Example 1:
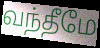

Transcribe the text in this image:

வந்தீமே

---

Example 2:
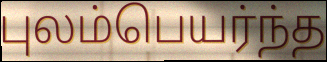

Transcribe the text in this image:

புலம்பெயர்ந்த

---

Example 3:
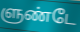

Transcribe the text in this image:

ளுண்டே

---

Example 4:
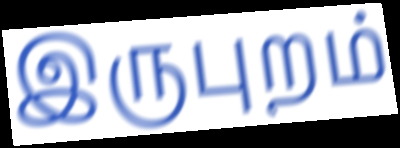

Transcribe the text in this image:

இருபுறம்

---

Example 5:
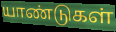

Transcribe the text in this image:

யாண்டுகள்